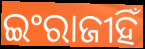
ଇଂରାଜୀହିଁ